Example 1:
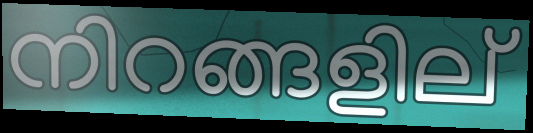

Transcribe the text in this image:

നിറങ്ങളില്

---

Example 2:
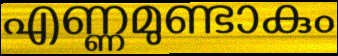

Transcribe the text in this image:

എണ്ണമുണ്ടാകും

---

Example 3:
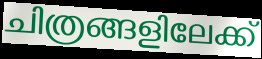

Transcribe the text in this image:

ചിത്രങ്ങളിലേക്ക്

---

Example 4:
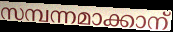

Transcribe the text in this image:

സമ്പന്നമാക്കാന്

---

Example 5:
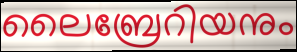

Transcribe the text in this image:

ലൈബ്രേറിയനും